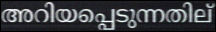
അറിയപ്പെടുന്നതില്